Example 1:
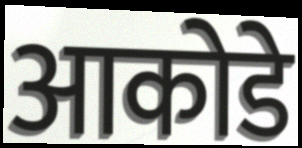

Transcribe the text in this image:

आकोडे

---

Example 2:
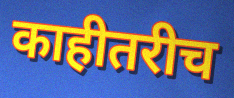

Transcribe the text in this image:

काहीतरीच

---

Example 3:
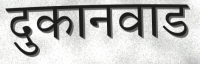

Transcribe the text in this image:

दुकानवाड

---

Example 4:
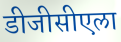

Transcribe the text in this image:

डीजीसीएला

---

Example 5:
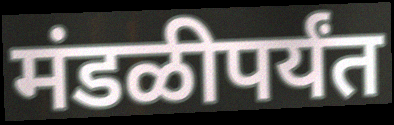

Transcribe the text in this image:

मंडळीपर्यंत